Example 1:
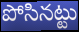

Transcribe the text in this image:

పోసినట్టు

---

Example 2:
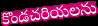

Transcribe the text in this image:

కొండచరియలను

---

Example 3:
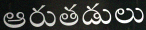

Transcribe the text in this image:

ఆరుతడులు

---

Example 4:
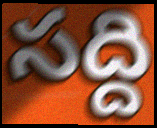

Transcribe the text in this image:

సద్ది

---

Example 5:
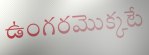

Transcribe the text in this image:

ఉంగరమొక్కటే